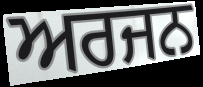
ਅਰਜਨ